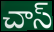
చాస్